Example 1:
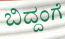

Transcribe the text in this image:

ಬಿದ್ದಂಗೆ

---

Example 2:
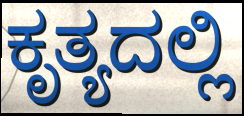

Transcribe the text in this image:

ಕೃತ್ಯದಲ್ಲಿ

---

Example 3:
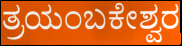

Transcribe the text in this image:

ತ್ರಯಂಬಕೇಶ್ವರ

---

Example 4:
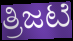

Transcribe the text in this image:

ತ್ರಿಜಟೆ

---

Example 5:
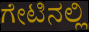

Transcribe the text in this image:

ಗೇಟಿನಲ್ಲಿ